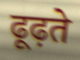
ढूढ़ते